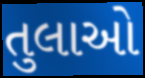
તુલાઓ